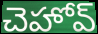
చెహోవ్